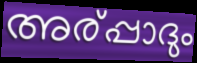
അര്പ്പാദും